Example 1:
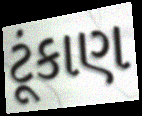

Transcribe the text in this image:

ટૂંકાણ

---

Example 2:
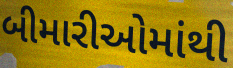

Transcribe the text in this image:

બીમારીઓમાંથી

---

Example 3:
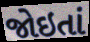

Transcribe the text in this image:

જોઇતાં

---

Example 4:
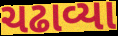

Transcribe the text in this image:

ચઢાવ્યા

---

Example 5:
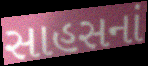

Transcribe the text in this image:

સાહસનાં